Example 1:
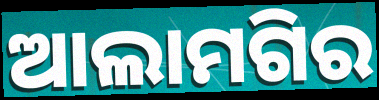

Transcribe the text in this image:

ଆଲାମଗିର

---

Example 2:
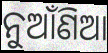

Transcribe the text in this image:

ନୁଆଁଣିଆ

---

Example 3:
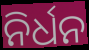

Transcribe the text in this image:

ନିର୍ଧନ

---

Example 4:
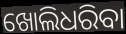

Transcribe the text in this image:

ଖୋଲିଧରିବା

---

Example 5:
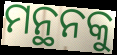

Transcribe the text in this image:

ମନ୍ଥନକୁ